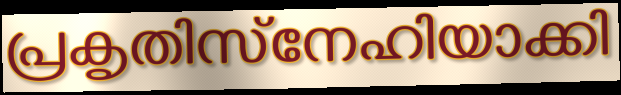
പ്രകൃതിസ്‌നേഹിയാക്കി